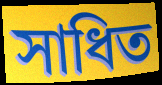
সাধিত